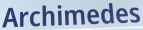
Archimedes